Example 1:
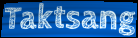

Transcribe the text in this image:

Taktsang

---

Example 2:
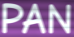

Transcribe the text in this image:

PAN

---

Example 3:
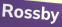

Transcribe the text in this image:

Rossby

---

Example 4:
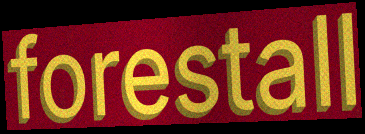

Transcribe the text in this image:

forestall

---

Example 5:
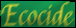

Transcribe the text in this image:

Ecocide